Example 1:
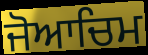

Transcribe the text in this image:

ਜੋਆਚਿਮ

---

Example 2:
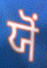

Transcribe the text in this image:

ਯੋਂ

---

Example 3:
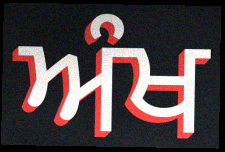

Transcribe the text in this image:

ਅੰਖ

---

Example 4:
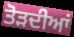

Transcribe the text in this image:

ਤੋੜਦੀਆਂ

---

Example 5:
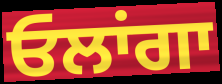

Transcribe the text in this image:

ਓਲਾਂਗਾ